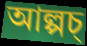
আল্পচ্